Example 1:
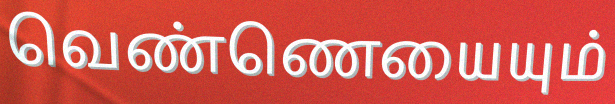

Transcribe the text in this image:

வெண்ணெயையும்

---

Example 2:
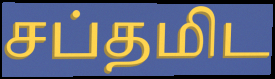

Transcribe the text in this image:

சப்தமிட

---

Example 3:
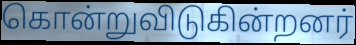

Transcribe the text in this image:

கொன்றுவிடுகின்றனர்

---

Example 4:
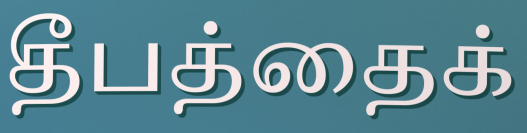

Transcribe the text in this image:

தீபத்தைக்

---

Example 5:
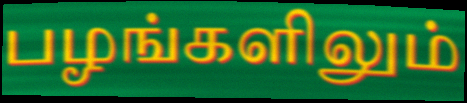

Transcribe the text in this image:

பழங்களிலும்